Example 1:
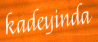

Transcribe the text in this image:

kadeyinda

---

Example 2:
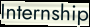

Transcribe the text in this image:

Internship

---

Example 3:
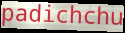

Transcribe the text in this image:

padichchu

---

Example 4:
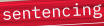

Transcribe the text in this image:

sentencing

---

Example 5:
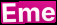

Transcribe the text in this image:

Eme